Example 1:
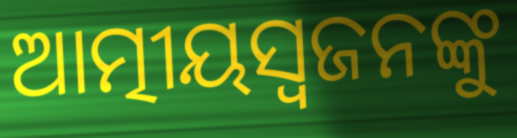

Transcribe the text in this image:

ଆତ୍ମୀୟସ୍ୱଜନଙ୍କୁ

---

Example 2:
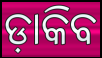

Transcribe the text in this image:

ଡ଼ାକିବ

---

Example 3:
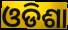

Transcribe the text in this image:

ଓଡିଶା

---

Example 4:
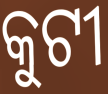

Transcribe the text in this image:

କୁଟୀ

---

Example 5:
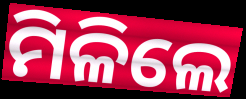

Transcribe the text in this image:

ମିଳିଲେ